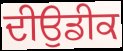
ਦੀਉਡੀਕ